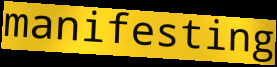
manifesting